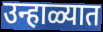
उन्हाळ्यात